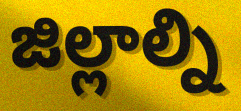
జిల్లాల్ని